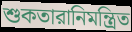
শুকতারানিমন্ত্রিত